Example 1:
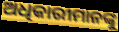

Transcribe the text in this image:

ଅଧିକାରୀମାନଙ୍କୁ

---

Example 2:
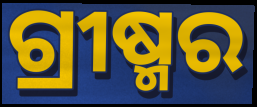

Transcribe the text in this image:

ଗ୍ରୀଷ୍ମର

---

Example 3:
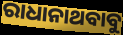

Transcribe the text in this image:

ରାଧାନାଥବାବୁ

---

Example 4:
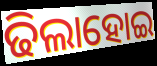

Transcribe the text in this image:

ଢିଲାହୋଇ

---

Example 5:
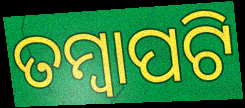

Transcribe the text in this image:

ତମ୍ବାପଟି